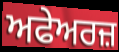
ਅਫੇਅਰਜ਼